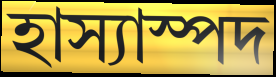
হাস্যাস্পদ